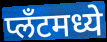
प्लँटमध्ये